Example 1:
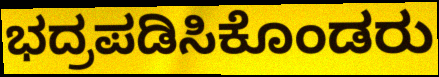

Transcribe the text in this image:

ಭದ್ರಪಡಿಸಿಕೊಂಡರು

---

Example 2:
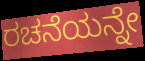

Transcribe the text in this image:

ರಚನೆಯನ್ನೇ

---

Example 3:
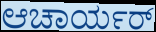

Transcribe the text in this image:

ಆಚಾರ್ಯರ್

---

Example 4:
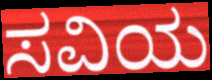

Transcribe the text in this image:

ಸವಿಯ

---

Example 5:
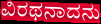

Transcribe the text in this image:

ವಿರಥನಾದನು